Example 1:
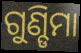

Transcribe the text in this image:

ଗୁଣ୍ଡିମା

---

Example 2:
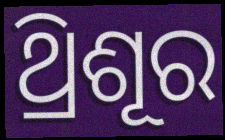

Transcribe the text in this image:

ଥ୍ରିଶୂର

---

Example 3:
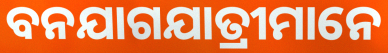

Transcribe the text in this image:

ବନଯାଗଯାତ୍ରୀମାନେ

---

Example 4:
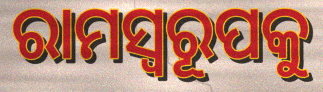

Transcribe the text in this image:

ରାମସ୍ୱରୂପକୁ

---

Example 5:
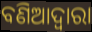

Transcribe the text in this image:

ବଣିଆଦ୍ୱାରା